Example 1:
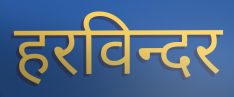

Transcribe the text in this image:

हरविन्दर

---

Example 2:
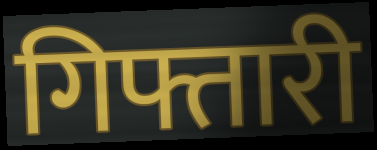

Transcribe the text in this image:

गिफ्तारी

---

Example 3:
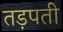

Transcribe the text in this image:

तड़पती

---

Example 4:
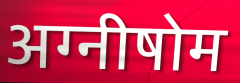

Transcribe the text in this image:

अग्नीषोम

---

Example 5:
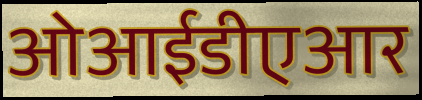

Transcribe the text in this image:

ओआईडीएआर